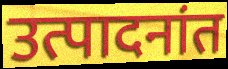
उत्पादनांत